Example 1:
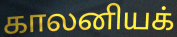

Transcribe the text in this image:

காலனியக்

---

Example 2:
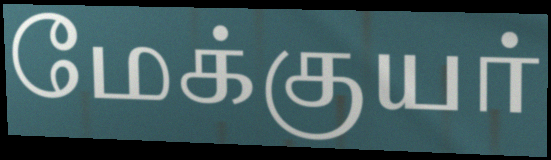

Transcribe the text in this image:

மேக்குயர்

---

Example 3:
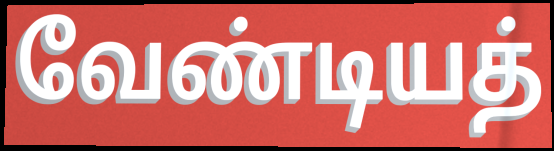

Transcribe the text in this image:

வேண்டியத்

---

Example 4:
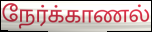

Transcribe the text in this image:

நேர்க்காணல்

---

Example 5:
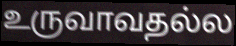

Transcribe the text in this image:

உருவாவதல்ல